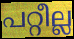
പറ്റീല്ല